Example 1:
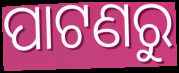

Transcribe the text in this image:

ପାଟଣରୁ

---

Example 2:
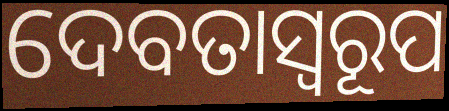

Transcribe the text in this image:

ଦେବତାସ୍ୱରୂପ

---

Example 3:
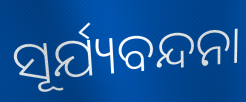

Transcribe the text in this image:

ସୂର୍ଯ୍ୟବନ୍ଦନା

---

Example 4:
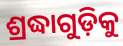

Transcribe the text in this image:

ଶ୍ରଦ୍ଧାଗୁଡ଼ିକୁ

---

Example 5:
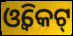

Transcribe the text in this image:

ଓ୍ଵିକେଟ୍